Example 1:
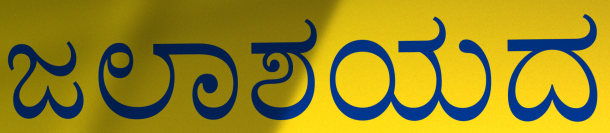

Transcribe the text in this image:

ಜಲಾಶಯದ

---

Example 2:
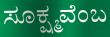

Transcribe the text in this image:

ಸೂಕ್ಷ್ಮವೆಂಬ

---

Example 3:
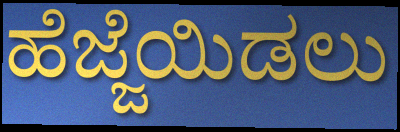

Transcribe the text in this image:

ಹೆಜ್ಜೆಯಿಡಲು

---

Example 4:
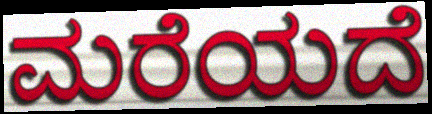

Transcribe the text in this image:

ಮರೆಯದೆ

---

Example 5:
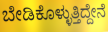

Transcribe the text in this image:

ಬೇಡಿಕೊಳ್ಳುತ್ತಿದ್ದೇನೆ